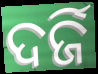
ଦର୍ଜି